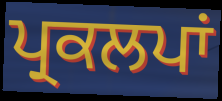
ਪ੍ਰਕਲਪਾਂ